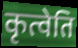
कृत्वेति